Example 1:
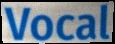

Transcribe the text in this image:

Vocal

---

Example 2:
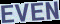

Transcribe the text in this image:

EVEN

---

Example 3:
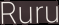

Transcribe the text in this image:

Ruru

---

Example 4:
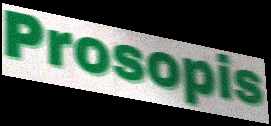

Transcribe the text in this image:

Prosopis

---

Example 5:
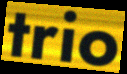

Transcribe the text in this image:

trio